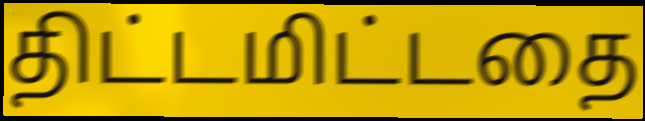
திட்டமிட்டதை